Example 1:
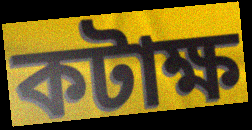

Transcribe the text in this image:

কটাক্ষ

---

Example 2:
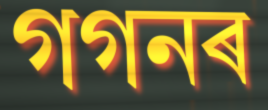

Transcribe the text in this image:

গগনৰ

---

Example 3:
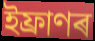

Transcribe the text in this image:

ইফ্ৰাণৰ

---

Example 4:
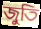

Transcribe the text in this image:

জুতি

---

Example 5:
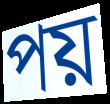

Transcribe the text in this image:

পয়